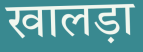
खालड़ा